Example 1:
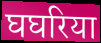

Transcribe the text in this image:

घघरिया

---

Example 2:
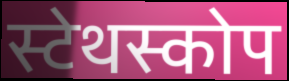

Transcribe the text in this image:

स्टेथस्कोप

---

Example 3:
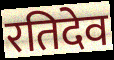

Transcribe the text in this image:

रतिदेव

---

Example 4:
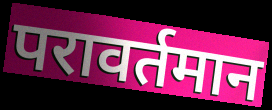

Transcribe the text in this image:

परावर्तमान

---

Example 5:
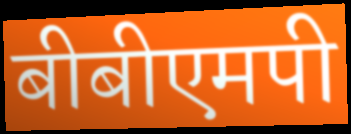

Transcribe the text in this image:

बीबीएमपी